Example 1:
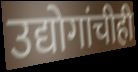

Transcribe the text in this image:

उद्योगांचीही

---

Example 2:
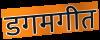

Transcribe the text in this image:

डगमगीत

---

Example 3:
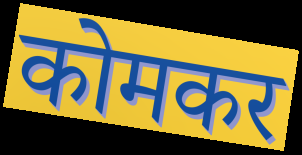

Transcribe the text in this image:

कोमकर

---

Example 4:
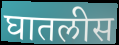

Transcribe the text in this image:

घातलीस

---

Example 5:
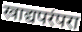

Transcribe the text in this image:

खाद्यपरंपरा